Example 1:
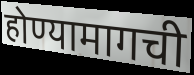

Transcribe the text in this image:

होण्यामागची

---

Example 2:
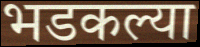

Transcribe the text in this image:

भडकल्या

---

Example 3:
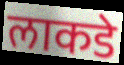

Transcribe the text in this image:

लाकडे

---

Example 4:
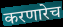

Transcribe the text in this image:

करणारेच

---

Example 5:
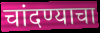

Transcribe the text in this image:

चांदण्याचा